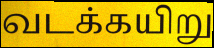
வடக்கயிறு